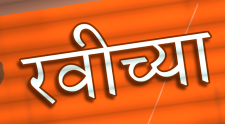
रवीच्या